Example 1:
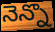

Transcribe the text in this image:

నెన్నొ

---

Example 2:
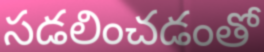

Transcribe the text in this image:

సడలించడంతో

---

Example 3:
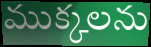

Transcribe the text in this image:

ముక్కలను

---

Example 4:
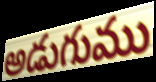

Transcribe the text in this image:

అడుగుము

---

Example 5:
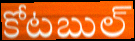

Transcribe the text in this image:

కోటబుల్